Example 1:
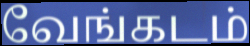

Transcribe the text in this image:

வேங்கடம்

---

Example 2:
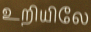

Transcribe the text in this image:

உறியிலே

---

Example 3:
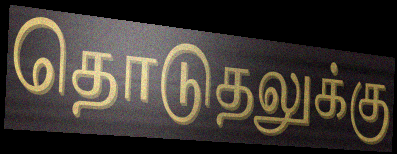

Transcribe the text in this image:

தொடுதலுக்கு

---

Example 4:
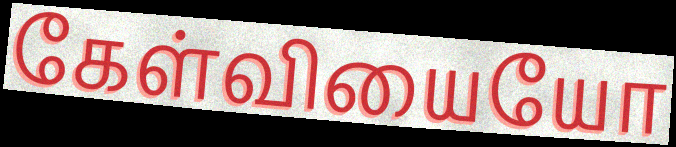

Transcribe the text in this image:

கேள்வியையோ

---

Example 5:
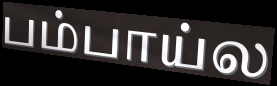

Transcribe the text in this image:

பம்பாய்ல